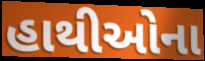
હાથીઓના